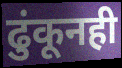
ढुंकूनही